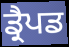
ਡ੍ਰੈਪਡ